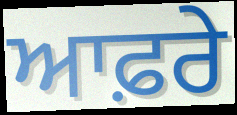
ਆਫ਼ਰੇ